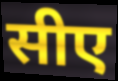
सीए